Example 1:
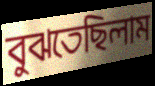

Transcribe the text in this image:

বুঝতেছিলাম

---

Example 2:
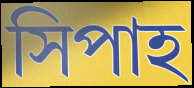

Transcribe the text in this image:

সিপাহ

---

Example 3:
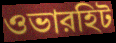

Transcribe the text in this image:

ওভারহিট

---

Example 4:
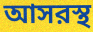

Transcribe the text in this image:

আসরস্থ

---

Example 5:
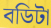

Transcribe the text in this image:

বডিটা